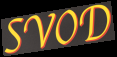
SVOD